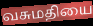
வசுமதியை